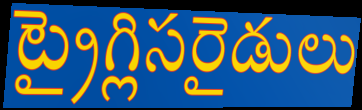
ట్రైగ్లిసరైడులు